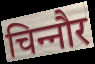
चिन्‍नौर